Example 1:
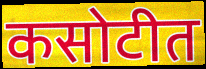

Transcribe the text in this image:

कसोटीत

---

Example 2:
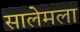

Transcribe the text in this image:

सालेमला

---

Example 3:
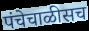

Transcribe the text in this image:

पंचेचाळीसच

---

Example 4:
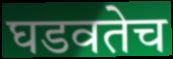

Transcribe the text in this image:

घडवतेच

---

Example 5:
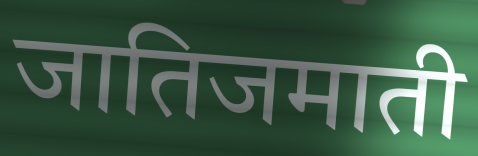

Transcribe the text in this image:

जातिजमाती